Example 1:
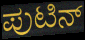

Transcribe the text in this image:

ಪುಟಿನ್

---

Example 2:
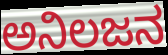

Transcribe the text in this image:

ಅನಿಲಜನ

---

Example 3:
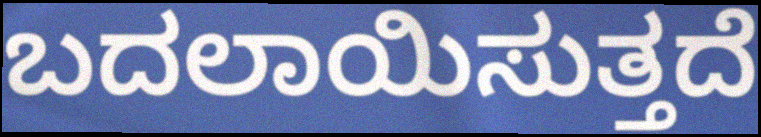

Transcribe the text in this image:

ಬದಲಾಯಿಸುತ್ತದೆ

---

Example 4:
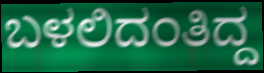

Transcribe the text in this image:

ಬಳಲಿದಂತಿದ್ದ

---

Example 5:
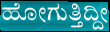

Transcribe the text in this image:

ಹೋಗುತ್ತಿದ್ದೀ